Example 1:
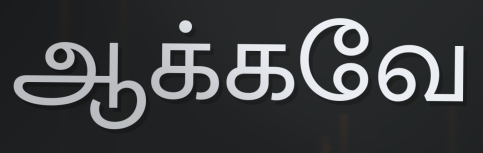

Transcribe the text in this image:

ஆக்கவே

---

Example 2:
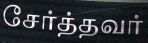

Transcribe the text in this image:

சேர்த்தவர்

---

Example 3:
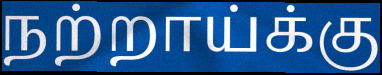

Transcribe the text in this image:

நற்றாய்க்கு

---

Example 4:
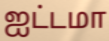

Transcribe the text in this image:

ஐட்டமா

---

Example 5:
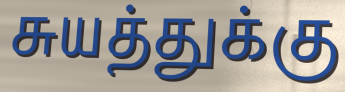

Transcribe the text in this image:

சுயத்துக்கு